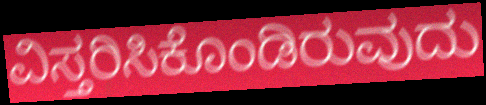
ವಿಸ್ತರಿಸಿಕೊಂಡಿರುವುದು